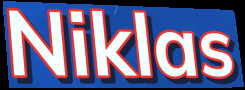
Niklas